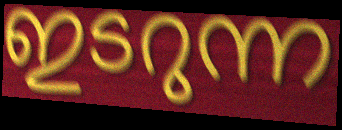
ഇടറുന്ന